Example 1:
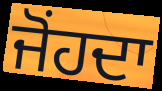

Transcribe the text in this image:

ਜੋਂਹਦਾ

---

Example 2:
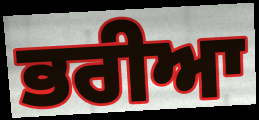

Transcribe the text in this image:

ਭਰੀਆ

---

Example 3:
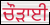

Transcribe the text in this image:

ਚੌੜਾਈ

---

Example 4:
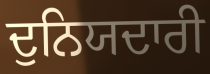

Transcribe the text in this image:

ਦੁਨਿਯਦਾਰੀ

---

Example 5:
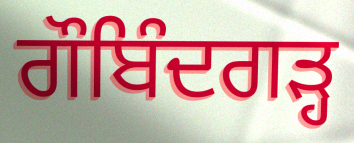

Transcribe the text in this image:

ਗੌਬਿੰਦਗੜ੍ਹ